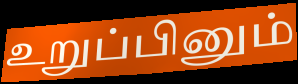
உறுப்பினும்